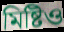
মিষ্টিও